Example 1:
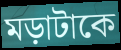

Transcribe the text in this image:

মড়াটাকে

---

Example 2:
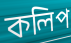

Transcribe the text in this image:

কলিপ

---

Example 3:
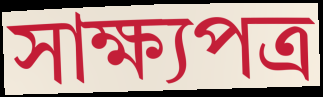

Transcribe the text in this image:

সাক্ষ্যপত্র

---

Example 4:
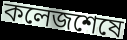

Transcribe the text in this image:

কলেজশেষে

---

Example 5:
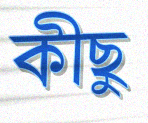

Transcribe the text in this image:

কীছু